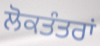
ਲੋਕਤੰਤਰਾਂ